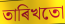
তাৰিখতো